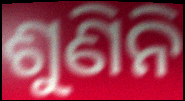
ଶୁଣିନି